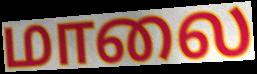
மாலை